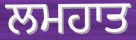
ਲਮਹਾਤ